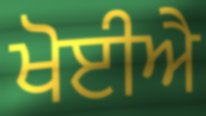
ਖੋਈਐ